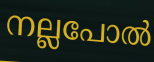
നല്ലപോൽ